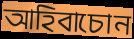
আহিবাচোন